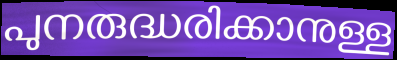
പുനരുദ്ധരിക്കാനുള്ള